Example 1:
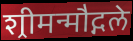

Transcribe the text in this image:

श्रीमन्मौद्गले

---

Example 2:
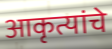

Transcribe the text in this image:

आकृत्यांचे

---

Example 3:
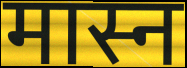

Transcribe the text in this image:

मास्न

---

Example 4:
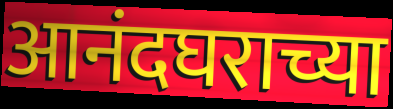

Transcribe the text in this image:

आनंदघराच्या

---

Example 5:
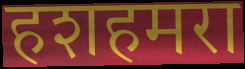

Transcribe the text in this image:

हशहमरा